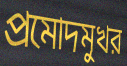
প্রমোদমুখর